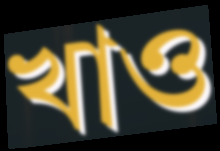
খাও